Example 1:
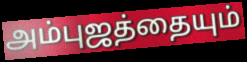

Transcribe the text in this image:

அம்புஜத்தையும்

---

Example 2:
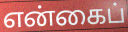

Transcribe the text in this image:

என்கைப்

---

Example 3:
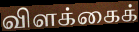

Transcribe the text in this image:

விளக்கைக்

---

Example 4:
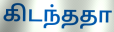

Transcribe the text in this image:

கிடந்ததா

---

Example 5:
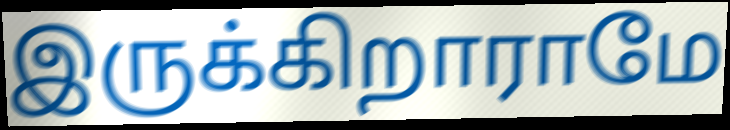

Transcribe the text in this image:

இருக்கிறாராமே